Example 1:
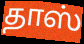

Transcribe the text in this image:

தாஸ்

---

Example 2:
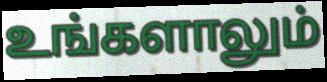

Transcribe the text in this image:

உங்களாலும்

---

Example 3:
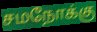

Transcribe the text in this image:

சமநோக்கு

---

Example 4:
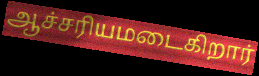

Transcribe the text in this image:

ஆச்சரியமடைகிறார்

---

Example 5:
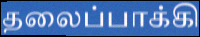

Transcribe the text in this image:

தலைப்பாக்கி